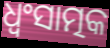
ଧ୍ଵଂସାତ୍ମକ